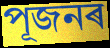
পূজনৰ